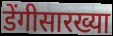
डेंगीसारख्या